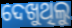
ଦେଖୁଥିଲୁ